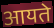
आयते